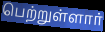
பெற்றுள்ளார்